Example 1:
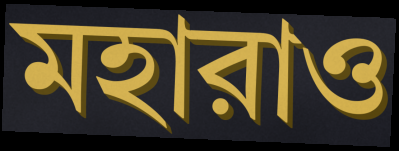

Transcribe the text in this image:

মহারাও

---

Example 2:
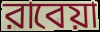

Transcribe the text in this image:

রাবেয়া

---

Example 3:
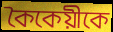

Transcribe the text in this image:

কৈকেয়ীকে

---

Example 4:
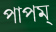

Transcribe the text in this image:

পাপম্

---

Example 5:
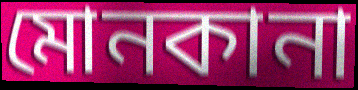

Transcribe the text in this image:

মোনকানা